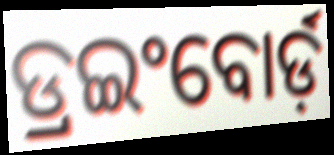
ଡ୍ରଇଂବୋର୍ଡ଼